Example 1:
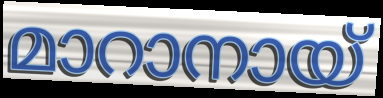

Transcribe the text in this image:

മാറാനായ്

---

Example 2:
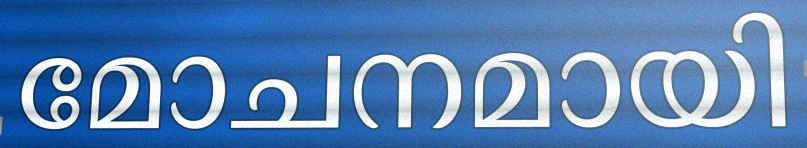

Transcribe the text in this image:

മോചനമായി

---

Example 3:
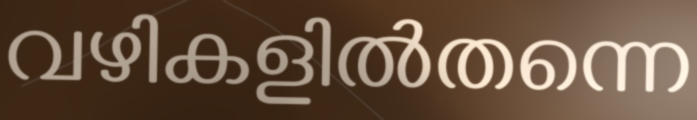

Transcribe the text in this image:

വഴികളിൽതന്നെ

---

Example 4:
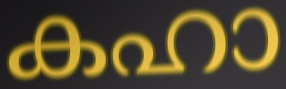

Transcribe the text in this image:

കഹാ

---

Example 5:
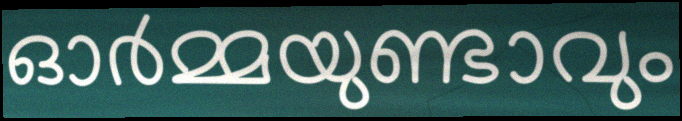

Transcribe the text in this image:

ഓർമ്മയുണ്ടാവും